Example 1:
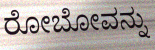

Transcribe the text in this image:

ರೋಬೋವನ್ನು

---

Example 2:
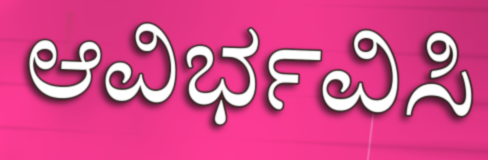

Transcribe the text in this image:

ಆವಿರ್ಭವಿಸಿ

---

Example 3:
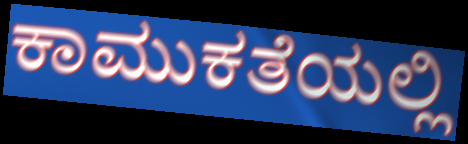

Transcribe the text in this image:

ಕಾಮುಕತೆಯಲ್ಲಿ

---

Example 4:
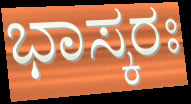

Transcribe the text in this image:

ಭಾಸ್ಕರಃ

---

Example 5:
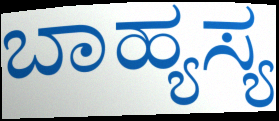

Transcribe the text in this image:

ಬಾಹ್ಯಸ್ಯ